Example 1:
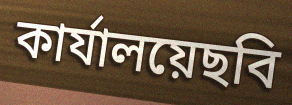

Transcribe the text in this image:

কার্যালয়েছবি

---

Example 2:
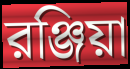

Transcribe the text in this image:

রঞ্জিয়া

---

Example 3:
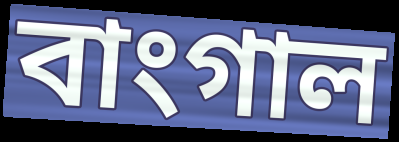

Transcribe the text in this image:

বাংগাল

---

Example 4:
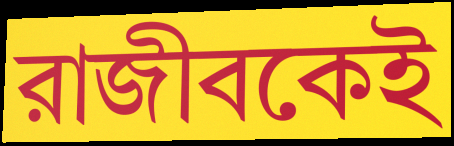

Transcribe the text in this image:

রাজীবকেই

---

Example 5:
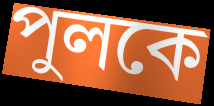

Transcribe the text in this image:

পুলকে